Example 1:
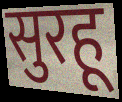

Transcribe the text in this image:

सुरहू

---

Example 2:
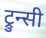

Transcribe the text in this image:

ट्रुन्सी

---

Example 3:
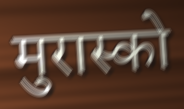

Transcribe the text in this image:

मुरास्को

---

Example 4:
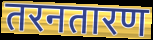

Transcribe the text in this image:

तरनतारण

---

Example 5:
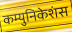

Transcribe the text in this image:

कम्‍युनिकेशंस